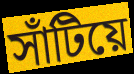
সাঁটিয়ে